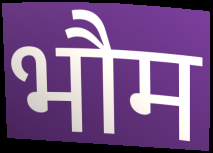
भौम